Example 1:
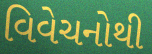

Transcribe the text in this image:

વિવેચનોથી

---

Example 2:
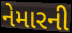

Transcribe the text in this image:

નેમારની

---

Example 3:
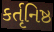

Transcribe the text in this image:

કર્તૃનિષ્ઠ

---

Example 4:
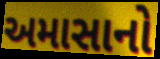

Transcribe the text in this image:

અમાસાનો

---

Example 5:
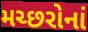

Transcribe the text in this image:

મચ્છરોનાં